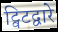
ट्विटद्वारे